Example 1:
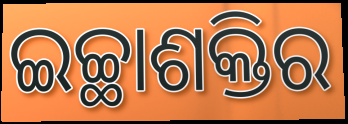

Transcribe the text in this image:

ଇଚ୍ଛାଶକ୍ତିର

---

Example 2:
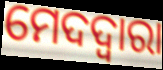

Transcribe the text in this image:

ମେଦଦ୍ଵାରା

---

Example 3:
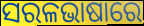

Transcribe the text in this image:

ସରଳଭାଷାରେ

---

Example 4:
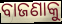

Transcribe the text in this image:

ବାଜଣାକୁ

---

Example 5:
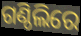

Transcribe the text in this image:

ଗଣ୍ଠିଲିରେ